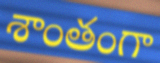
శాంతంగా